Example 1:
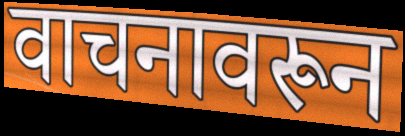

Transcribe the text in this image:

वाचनावरून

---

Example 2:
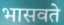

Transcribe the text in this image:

भासवते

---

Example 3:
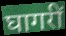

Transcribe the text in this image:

घागरीं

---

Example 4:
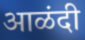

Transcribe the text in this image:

आळंदी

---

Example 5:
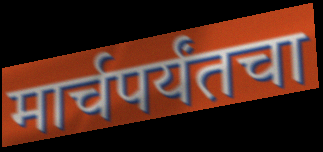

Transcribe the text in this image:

मार्चपर्यंतचा